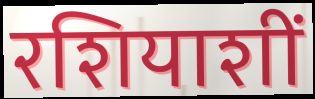
रशियाशीं